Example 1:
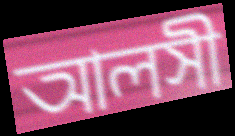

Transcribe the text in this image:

আলসী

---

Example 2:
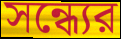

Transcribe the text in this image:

সন্ধ্যের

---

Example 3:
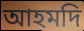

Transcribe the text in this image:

আহমদি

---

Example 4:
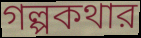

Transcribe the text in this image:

গল্পকথার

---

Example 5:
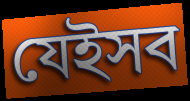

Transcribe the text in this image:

যেইসব